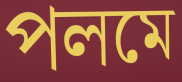
পলমে